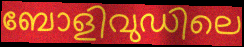
ബോളിവുഡിലെ